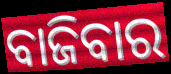
ବାଜିବାର